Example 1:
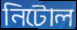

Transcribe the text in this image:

নিটোল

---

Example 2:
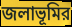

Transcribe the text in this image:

জলাভূমির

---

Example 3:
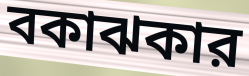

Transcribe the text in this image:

বকাঝকার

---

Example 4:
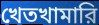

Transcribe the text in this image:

খেতখামারি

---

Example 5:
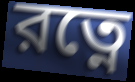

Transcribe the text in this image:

রত্নে